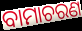
ବାମାଚରଣ